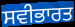
ਸਵੀਭਾਰਤ